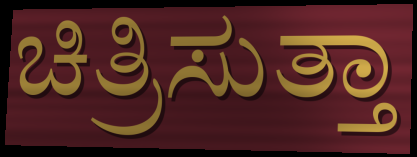
ಚಿತ್ರಿಸುತ್ತಾ